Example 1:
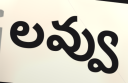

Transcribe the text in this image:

లవ్వు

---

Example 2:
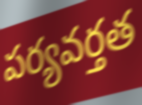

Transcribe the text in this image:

పర్యవర్తత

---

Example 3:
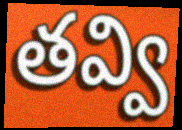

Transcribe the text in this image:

తవ్వి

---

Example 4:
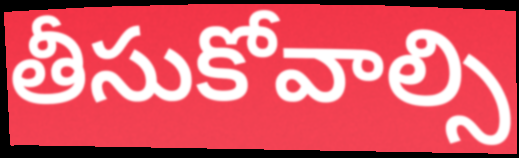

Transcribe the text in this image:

తీసుకోవాల్సి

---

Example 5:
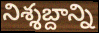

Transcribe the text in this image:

నిశ్శబ్దాన్ని